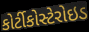
કોર્ટીકોસ્ટેરોઇડ